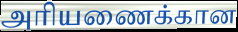
அரியணைக்கான